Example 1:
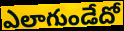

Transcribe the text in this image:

ఎలాగుండేదో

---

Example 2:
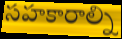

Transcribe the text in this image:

సహకారాల్ని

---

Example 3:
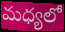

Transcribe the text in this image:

మధ్యలో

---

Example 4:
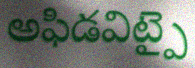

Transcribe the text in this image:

అఫిడవిట్పై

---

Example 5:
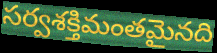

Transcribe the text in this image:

సర్వశక్తిమంతమైనది